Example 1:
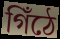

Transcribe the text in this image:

গিঁঠে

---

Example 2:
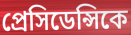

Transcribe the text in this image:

প্রেসিডেন্সিকে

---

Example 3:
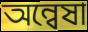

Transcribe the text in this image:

অন্বেষা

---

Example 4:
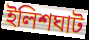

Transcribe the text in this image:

ইলিশঘাট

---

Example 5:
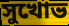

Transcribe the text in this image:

সুখোভ